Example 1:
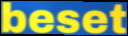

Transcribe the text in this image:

beset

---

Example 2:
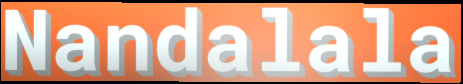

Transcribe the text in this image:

Nandalala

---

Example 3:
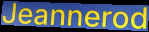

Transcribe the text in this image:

Jeannerod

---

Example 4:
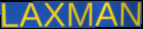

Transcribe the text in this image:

LAXMAN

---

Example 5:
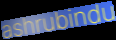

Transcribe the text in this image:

ashrubindu